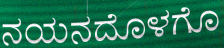
ನಯನದೊಳಗೊ